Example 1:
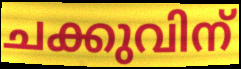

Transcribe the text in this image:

ചക്കുവിന്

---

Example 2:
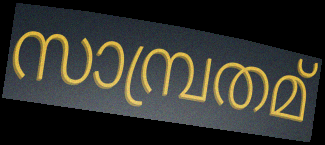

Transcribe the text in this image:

സാമ്പ്രതമ്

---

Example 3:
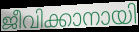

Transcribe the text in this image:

ജീവിക്കാനായി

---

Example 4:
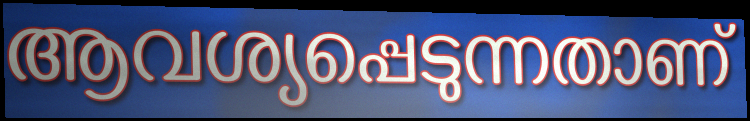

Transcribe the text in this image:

ആവശ്യപ്പെടുന്നതാണ്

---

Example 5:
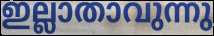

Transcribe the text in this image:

ഇല്ലാതാവുന്നു